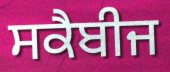
ਸਕੈਬੀਜ